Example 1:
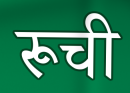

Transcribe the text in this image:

रूची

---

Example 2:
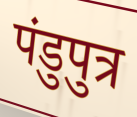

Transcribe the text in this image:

पंडुपुत्र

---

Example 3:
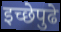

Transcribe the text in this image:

इच्छेपुढे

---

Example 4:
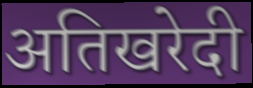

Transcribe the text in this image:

अतिखरेदी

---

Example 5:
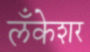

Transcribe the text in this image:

लँकेशर